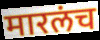
मारलंच